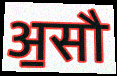
अ॒सौ